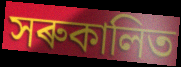
সৰুকালিত